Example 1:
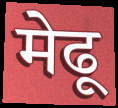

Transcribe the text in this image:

मेढू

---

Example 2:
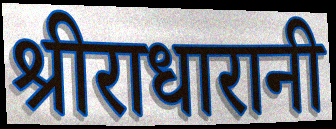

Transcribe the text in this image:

श्रीराधारानी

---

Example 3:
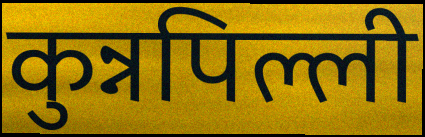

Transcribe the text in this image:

कुन्नपिल्ली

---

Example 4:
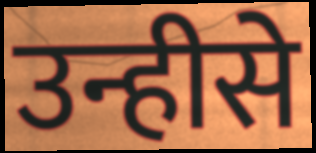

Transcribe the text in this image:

उन्हीसे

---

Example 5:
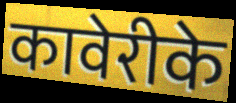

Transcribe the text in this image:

कावेरीके